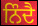
ਨਿੰਦੈ